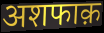
अशफाक़